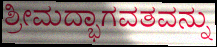
ಶ್ರೀಮದ್ಭಾಗವತವನ್ನು